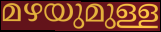
മഴയുമുള്ള